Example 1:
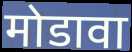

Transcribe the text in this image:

मोडावा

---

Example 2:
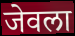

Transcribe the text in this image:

जेवला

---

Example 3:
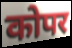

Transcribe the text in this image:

कोपर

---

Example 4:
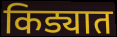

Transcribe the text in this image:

किड्यात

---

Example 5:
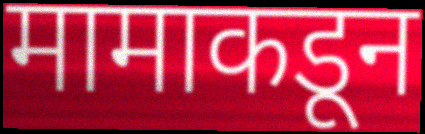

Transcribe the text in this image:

मामाकडून